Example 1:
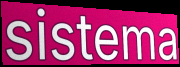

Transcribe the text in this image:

sistema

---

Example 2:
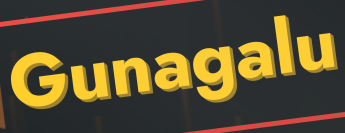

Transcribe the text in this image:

Gunagalu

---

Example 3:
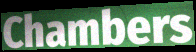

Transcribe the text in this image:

Chambers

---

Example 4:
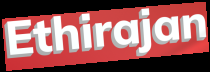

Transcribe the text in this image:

Ethirajan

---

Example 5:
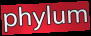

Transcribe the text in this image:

phylum